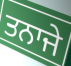
ਤਨਾਜੇ